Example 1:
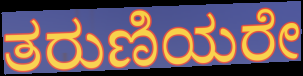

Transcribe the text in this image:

ತರುಣಿಯರೇ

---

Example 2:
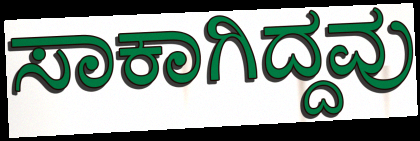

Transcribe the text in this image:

ಸಾಕಾಗಿದ್ದವು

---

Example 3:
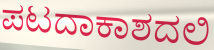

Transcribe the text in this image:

ಪಟದಾಕಾಶದಲಿ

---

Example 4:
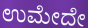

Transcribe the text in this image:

ಉಮೇದೇ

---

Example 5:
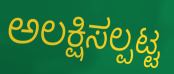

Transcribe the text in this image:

ಅಲಕ್ಷಿಸಲ್ಪಟ್ಟ